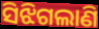
ସିଝିଗଲାଣି